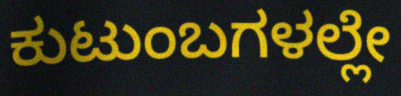
ಕುಟುಂಬಗಳಲ್ಲೇ